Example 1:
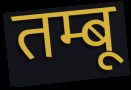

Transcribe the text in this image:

तम्बू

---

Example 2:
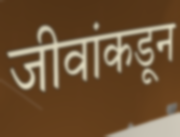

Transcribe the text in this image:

जीवांकडून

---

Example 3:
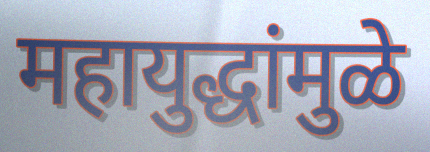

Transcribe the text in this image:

महायुद्धांमुळे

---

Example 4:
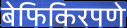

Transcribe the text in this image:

बेफिकिरपणे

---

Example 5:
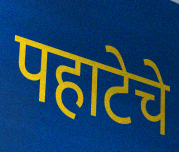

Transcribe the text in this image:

पहाटेचे